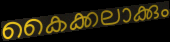
കൈക്കലാക്കും